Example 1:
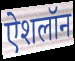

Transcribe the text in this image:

ऐशलॉन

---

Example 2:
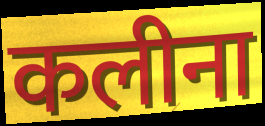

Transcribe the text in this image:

कलीना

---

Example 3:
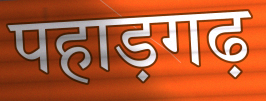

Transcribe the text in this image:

पहाड़गढ़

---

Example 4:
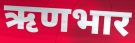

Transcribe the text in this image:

ऋणभार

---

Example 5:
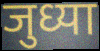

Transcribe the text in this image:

जुध्या